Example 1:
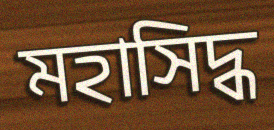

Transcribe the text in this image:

মহাসিদ্ধ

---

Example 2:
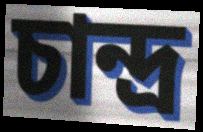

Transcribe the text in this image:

চান্দ্ৰ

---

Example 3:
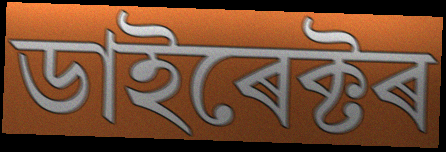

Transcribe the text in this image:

ডাইৰেক্টৰ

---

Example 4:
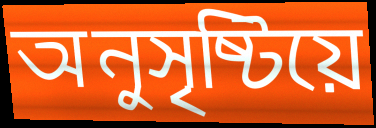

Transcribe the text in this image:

অনুসৃষ্টিয়ে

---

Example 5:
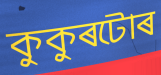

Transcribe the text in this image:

কুকুৰটোৰ